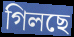
গিলছে